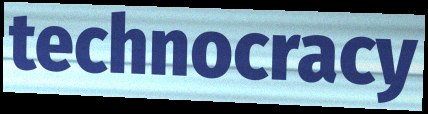
technocracy